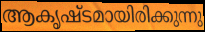
ആകൃഷ്ടമായിരിക്കുന്നു